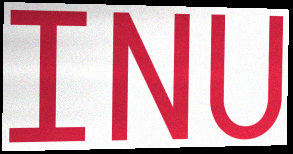
INU